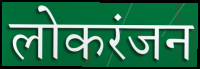
लोकरंजन